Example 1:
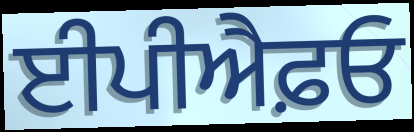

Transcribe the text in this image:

ਈਪੀਐਫ਼ਓ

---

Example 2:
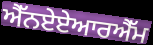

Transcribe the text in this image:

ਐੱਨਏਏਆਰਐੱਮ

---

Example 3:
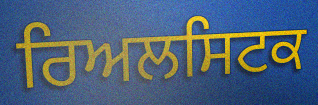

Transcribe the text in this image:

ਰਿਅਲਸਿਟਕ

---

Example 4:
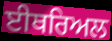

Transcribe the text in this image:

ਈਥਰਿਅਲ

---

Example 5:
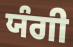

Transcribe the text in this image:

ਯੰਗੀ